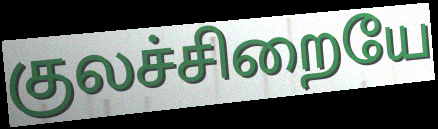
குலச்சிறையே